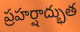
ప్రహర్షాద్భుత